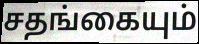
சதங்கையும்